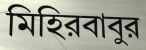
মিহিরবাবুর